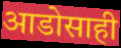
आडोसाही